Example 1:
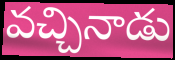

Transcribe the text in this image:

వచ్చినాడు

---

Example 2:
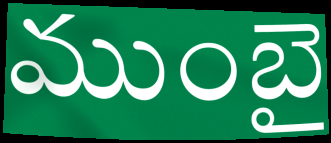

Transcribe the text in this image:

ముంబై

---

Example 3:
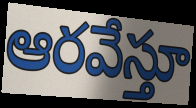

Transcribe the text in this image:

ఆరవేస్తూ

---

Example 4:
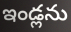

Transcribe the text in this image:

ఇండ్లను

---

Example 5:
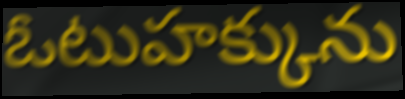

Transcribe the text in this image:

ఓటుహక్కును